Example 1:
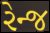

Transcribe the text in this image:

રેન્જ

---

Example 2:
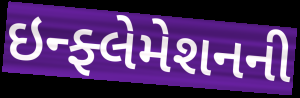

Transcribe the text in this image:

ઇન્ફ્લેમેશનની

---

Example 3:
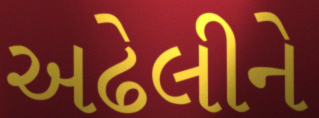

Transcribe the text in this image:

અઢેલીને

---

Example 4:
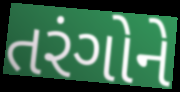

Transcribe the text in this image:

તરંગોને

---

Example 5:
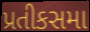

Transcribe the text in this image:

પ્રતીકસમા